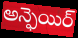
అన్ఫెయిర్